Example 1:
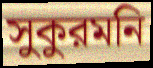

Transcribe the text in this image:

সুকুরমনি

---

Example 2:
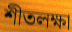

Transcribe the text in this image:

শীতলক্ষা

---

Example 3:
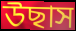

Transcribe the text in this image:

উছাস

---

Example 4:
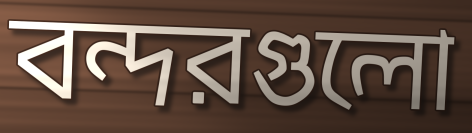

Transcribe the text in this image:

বন্দরগুলো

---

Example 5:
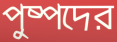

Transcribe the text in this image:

পুষ্পদের